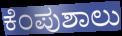
ಕೆಂಪುಶಾಲು